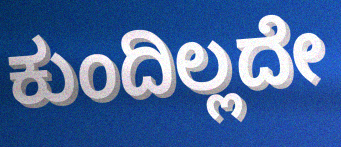
ಕುಂದಿಲ್ಲದೇ